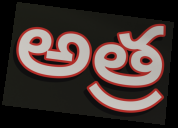
అత్ర